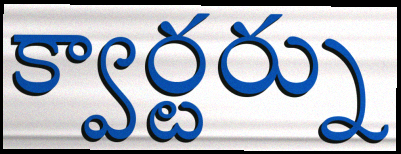
క్వార్టర్ను